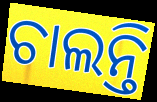
ଚାଲନ୍ତି